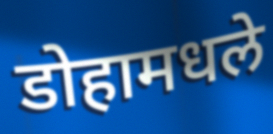
डोहामधले